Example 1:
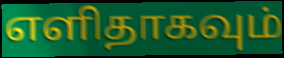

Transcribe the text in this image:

எளிதாகவும்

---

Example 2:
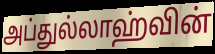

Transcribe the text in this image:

அப்துல்லாஹ்வின்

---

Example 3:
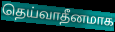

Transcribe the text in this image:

தெய்வாதீனமாக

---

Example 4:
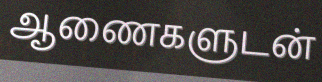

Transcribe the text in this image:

ஆணைகளுடன்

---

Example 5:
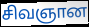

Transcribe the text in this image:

சிவஞான